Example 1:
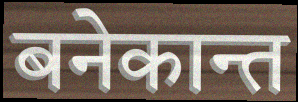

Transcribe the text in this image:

बनेकान्त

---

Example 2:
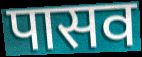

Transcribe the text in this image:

पासव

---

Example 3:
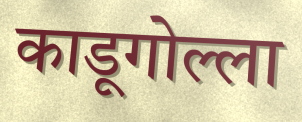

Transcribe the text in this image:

काडूगोल्ला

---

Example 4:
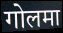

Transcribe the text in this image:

गोलमा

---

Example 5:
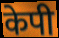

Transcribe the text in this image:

केपी